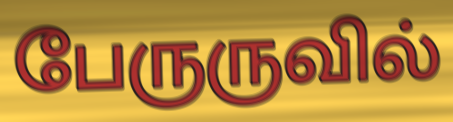
பேருருவில்